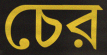
চের